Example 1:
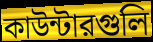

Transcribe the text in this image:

কাউন্টারগুলি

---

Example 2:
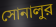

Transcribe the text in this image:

সোনালুর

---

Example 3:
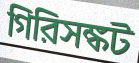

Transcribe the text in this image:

গিরিসঙ্কট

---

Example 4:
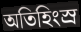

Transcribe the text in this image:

অতিহিংস্র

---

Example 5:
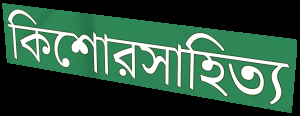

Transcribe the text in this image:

কিশোরসাহিত্য